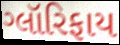
ગ્લૉરિફાય